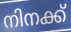
നിനക്ക്